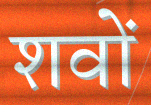
शवों